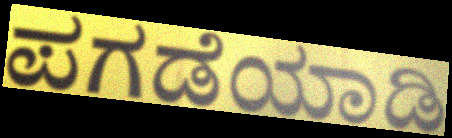
ಪಗಡೆಯಾಡಿ